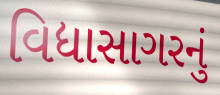
વિદ્યાસાગરનું